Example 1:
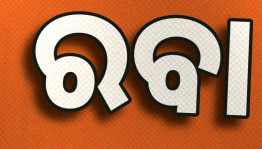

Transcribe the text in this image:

ରବା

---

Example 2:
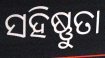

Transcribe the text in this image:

ସହିଷ୍ଣୁତା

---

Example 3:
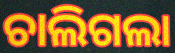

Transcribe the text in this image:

ଚାଲିଗଲା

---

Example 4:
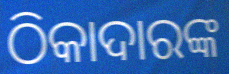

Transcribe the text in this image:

ଠିକାଦାରଙ୍କ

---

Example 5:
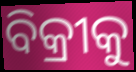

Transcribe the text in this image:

ବିକ୍ରୀକୁ